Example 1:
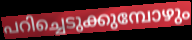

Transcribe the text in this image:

പറിച്ചെടുക്കുമ്പോഴും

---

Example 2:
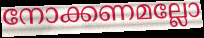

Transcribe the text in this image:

നോക്കണമല്ലോ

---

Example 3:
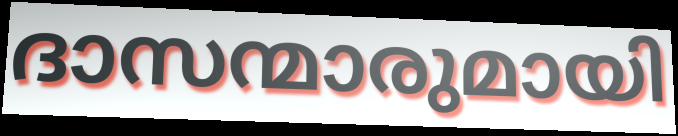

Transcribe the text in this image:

ദാസന്മാരുമായി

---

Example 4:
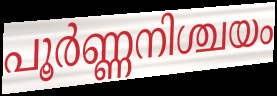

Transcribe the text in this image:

പൂർണ്ണനിശ്ചയം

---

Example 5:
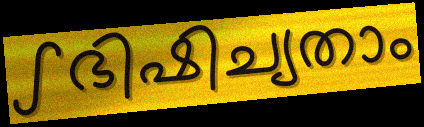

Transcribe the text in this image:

ഽഭിഷിച്യതാം